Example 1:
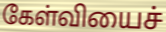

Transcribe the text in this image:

கேள்வியைச்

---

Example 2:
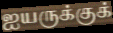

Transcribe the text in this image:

ஐயருக்குக்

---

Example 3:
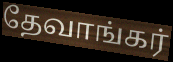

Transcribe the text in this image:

தேவாங்கர்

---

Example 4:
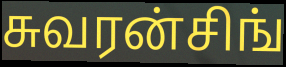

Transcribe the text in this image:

சுவரன்சிங்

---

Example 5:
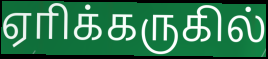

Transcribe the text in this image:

ஏரிக்கருகில்